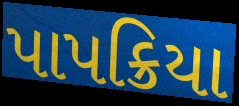
પાપક્રિયા